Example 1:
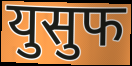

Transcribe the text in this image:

युसुफ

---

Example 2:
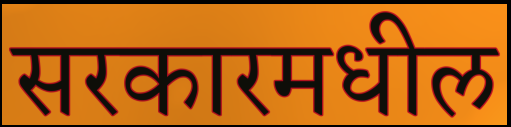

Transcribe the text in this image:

सरकारमधील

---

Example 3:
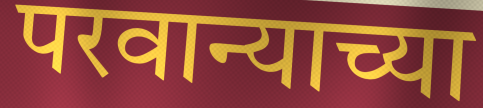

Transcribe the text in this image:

परवान्याच्या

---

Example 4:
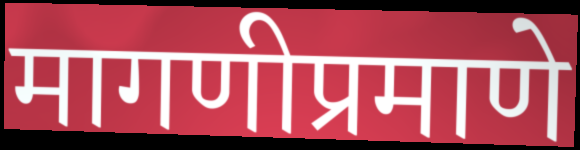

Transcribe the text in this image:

मागणीप्रमाणे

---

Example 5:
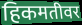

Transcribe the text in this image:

हिकमतीवर